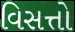
વિસત્તો